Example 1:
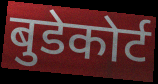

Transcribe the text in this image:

बुडेकोर्ट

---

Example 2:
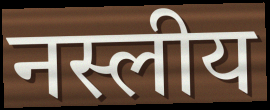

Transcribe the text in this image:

नस्लीय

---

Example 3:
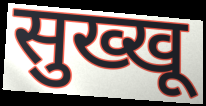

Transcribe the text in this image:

सुख्खू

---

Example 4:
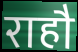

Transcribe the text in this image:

राहौ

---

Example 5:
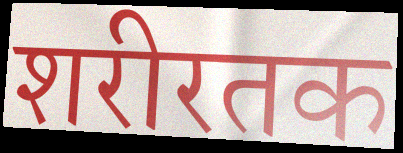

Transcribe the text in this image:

शरीरतक